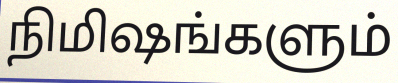
நிமிஷங்களும்